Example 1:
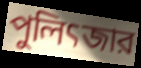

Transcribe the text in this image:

পুলিৎজার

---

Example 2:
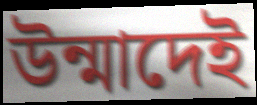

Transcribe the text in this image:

উন্মাদেই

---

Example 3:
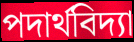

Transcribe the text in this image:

পদার্থবিদ্যা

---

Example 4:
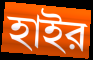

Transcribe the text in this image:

হাইর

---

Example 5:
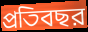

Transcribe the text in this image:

প্রতিবছর